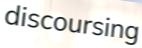
discoursing